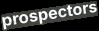
prospectors